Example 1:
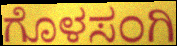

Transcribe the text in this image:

ಗೊಳಸಂಗಿ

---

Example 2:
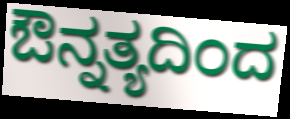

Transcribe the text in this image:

ಔನ್ನತ್ಯದಿಂದ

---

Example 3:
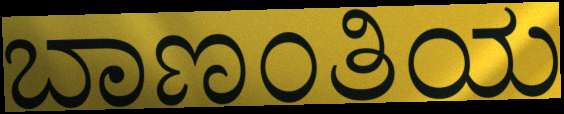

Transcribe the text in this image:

ಬಾಣಂತಿಯ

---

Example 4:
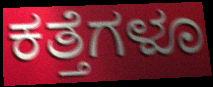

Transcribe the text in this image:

ಕತ್ತೆಗಳೂ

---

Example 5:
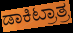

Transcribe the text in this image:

ಡಾಕಿಟ್ರಾತ್ರ